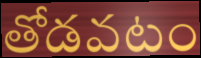
తోడవటం